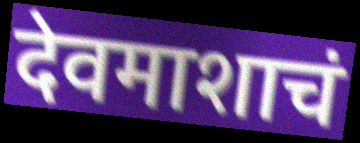
देवमाशाचं